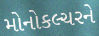
મોનોકલ્ચરને